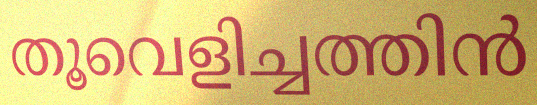
തൂവെളിച്ചത്തിൻ